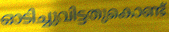
ഓടിച്ചുവിട്ടതുകൊണ്ട്